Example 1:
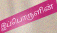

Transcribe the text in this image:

இப்பொருளின்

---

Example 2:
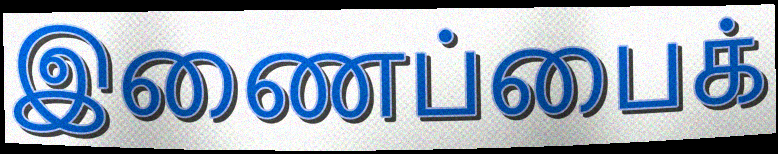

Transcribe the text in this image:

இணைப்பைக்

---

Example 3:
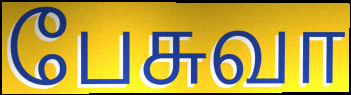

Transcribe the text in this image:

பேசுவா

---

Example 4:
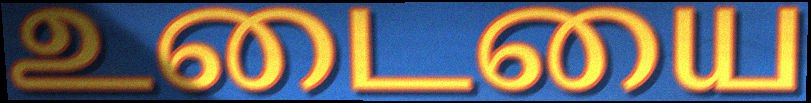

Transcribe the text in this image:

உடையை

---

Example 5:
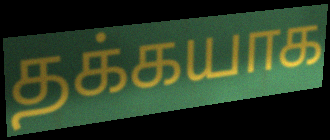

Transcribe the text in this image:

தக்கயாக